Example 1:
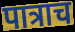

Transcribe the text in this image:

पात्राच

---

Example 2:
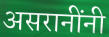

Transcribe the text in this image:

असरानींनी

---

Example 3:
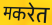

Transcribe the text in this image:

मकरेत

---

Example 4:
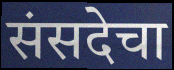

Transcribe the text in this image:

संसदेचा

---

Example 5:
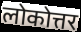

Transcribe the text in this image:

लोकोत्तर